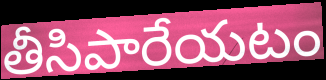
తీసిపారేయటం